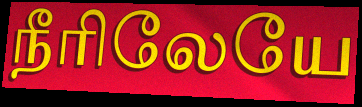
நீரிலேயே